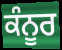
ਕੰਨੂਰ